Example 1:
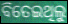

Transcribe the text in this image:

ବିତେଇଥିଲୁ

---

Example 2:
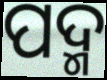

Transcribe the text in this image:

ପଦ୍ମ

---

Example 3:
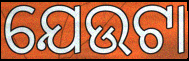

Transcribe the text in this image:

ଯେଉଟା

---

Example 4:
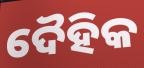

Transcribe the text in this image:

ଦୈହିକ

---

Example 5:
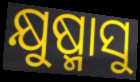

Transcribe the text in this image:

କ୍ଷୁଷ୍ମାସୁ